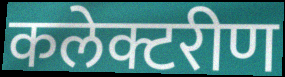
कलेक्टरीण